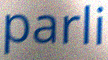
parli